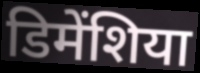
डिमेंशिया